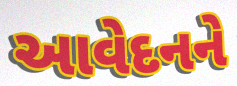
આવેદનને